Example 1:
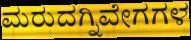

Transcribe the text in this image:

ಮರುದಗ್ನಿವೇಗಗಳ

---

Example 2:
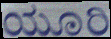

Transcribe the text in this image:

ಯೂರಿ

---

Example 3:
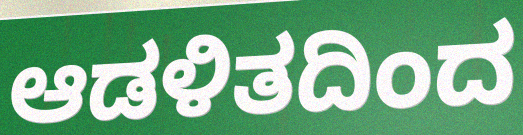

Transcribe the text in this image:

ಆಡಳಿತದಿಂದ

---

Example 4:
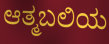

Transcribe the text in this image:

ಆತ್ಮಬಲಿಯ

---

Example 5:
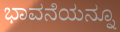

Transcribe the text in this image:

ಭಾವನೆಯನ್ನೂ